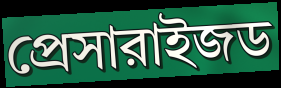
প্রেসারাইজড